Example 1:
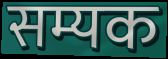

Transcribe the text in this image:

सम्‍यक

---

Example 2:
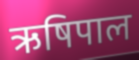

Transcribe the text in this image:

ऋषिपाल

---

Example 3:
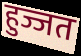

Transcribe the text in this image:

हुज्जत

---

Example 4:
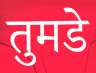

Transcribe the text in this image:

तुमडे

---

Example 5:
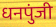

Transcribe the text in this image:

धनपुंजी